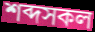
শব্দসকল